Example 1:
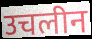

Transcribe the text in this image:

उचलीन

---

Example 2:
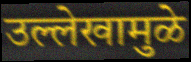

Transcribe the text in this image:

उल्लेखामुळे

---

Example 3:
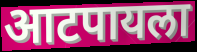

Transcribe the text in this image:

आटपायला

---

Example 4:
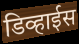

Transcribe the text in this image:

डिव्हाईस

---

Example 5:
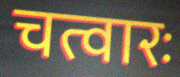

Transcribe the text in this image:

चत्वारः